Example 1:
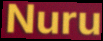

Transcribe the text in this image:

Nuru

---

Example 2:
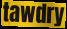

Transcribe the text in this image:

tawdry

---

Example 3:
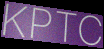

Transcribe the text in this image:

KPTC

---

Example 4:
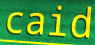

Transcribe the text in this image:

caid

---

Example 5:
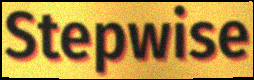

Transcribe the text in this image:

Stepwise